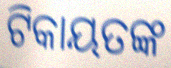
ଟିକାୟତଙ୍କ